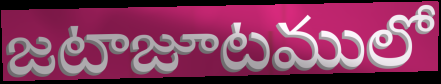
జటాజూటములో